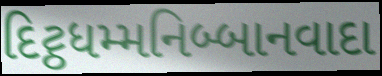
દિટ્ઠધમ્મનિબ્બાનવાદા